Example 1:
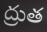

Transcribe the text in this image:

ద్రుత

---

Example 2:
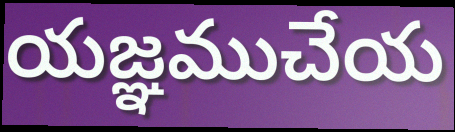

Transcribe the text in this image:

యజ్ఞముచేయ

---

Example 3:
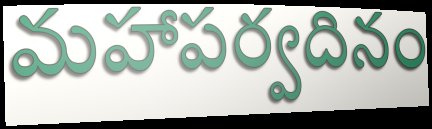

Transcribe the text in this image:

మహాపర్వదినం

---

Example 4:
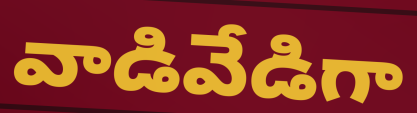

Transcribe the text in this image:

వాడివేడిగా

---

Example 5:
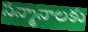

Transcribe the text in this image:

సన్మానాలకు